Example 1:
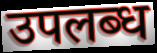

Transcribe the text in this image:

उपलब्‍ध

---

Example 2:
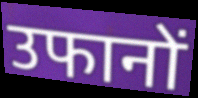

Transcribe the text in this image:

उफानों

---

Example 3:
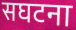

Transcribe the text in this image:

सघटना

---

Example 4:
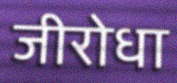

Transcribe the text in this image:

जीरोधा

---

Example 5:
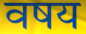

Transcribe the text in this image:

वषय